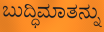
ಬುದ್ಧಿಮಾತನ್ನು